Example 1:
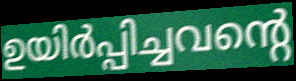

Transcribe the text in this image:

ഉയിർപ്പിച്ചവന്റെ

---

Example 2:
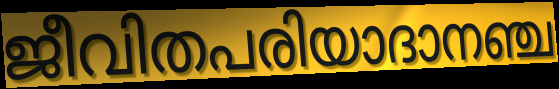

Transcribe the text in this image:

ജീവിതപരിയാദാനഞ്ച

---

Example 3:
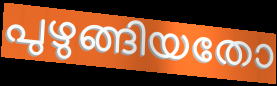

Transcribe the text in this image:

പുഴുങ്ങിയതോ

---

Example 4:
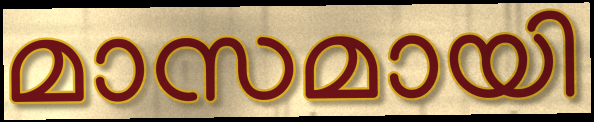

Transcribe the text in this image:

മാസമായി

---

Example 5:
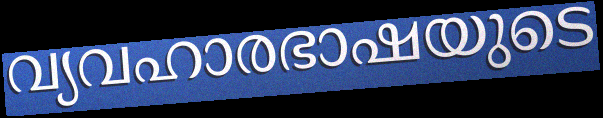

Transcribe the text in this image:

വ്യവഹാരഭാഷയുടെ